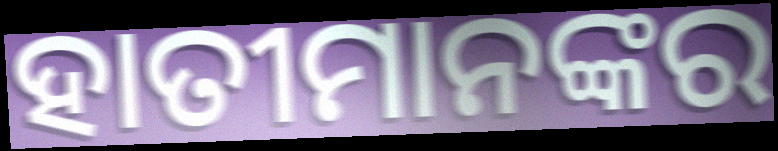
ହାତୀମାନଙ୍କର